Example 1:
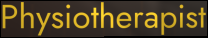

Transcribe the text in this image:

Physiotherapist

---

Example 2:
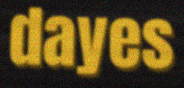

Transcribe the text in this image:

dayes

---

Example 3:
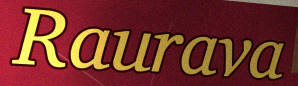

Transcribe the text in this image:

Raurava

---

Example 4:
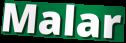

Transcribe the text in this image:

Malar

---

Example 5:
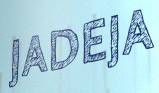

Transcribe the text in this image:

JADEJA